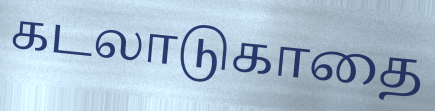
கடலாடுகாதை